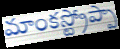
మాంకస్ట్రోప్పా